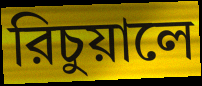
রিচুয়ালে